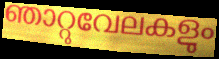
ഞാറ്റുവേലകളും